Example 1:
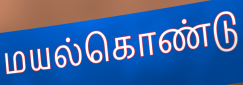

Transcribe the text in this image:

மயல்கொண்டு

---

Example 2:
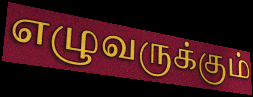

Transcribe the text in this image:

எழுவருக்கும்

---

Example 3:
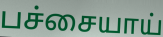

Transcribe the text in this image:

பச்சையாய்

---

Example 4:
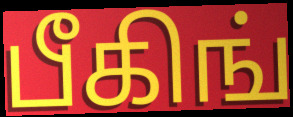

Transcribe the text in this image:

பீகிங்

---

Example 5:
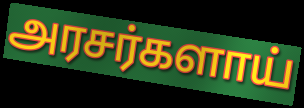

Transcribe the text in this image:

அரசர்களாய்